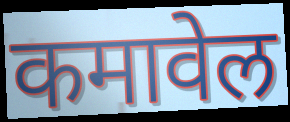
कमावेल